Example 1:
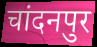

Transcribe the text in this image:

चांदनपुर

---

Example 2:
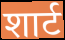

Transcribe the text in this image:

शार्ट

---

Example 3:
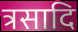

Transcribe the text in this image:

त्रसादि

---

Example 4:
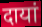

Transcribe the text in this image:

दायां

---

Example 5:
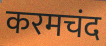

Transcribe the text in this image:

करमचंद